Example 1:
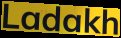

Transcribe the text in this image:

Ladakh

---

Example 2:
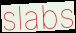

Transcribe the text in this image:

slabs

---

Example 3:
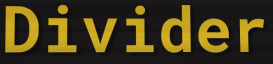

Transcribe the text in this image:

Divider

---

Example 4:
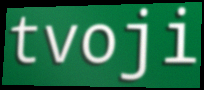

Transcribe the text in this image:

tvoji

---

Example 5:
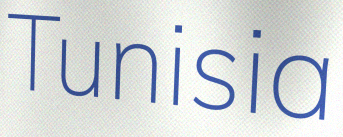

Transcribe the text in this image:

Tunisia